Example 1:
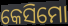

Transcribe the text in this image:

କେସିମୋ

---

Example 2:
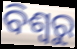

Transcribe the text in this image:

ବିଶ୍ଵରୁ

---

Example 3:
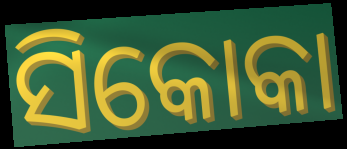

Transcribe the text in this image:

ସିକୋକା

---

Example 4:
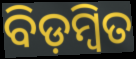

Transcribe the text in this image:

ବିଡ଼ମ୍ଵିତ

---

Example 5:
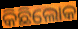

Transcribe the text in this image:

କିଛିଲୋକ